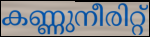
കണ്ണുനീരിറ്റ്